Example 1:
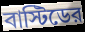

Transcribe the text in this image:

বাস্টিডের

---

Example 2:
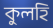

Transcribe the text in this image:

কুলহি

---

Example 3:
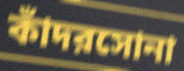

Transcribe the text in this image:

কাঁদরসোনা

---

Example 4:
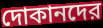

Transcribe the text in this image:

দোকানদের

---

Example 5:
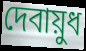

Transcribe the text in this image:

দেবায়ুধ